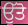
ਉੱਤੋ